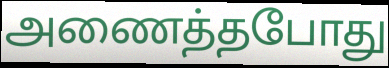
அணைத்தபோது